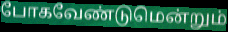
போகவேண்டுமென்றும்